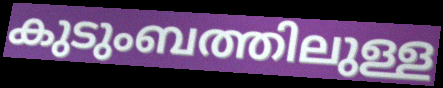
കുടുംബത്തിലുള്ള